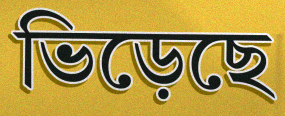
ভিড়েছে